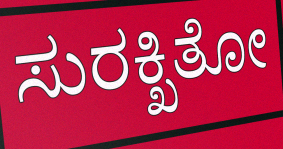
ಸುರಕ್ಖಿತೋ